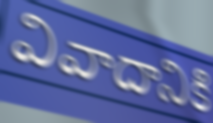
వివాదానికి